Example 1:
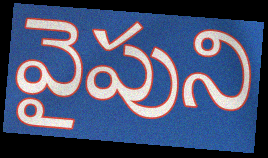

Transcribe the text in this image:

వైపుని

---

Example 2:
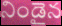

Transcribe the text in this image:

నిండైన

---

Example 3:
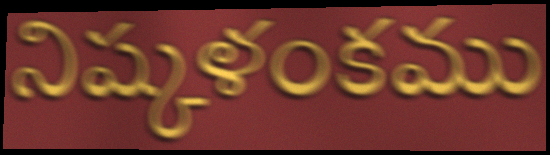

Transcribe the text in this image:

నిష్కళంకము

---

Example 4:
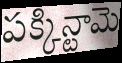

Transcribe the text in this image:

పక్కిన్టామె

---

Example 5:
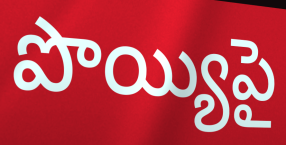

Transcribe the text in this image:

పొయ్యిపై